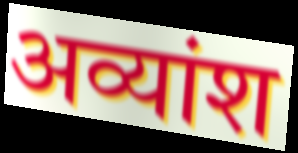
अव्यांश